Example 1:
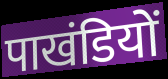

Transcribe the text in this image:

पाखंडियों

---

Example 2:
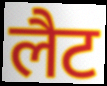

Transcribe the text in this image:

लैट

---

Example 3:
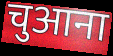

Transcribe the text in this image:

चुआना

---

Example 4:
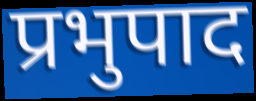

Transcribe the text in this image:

प्रभुपाद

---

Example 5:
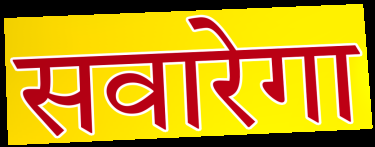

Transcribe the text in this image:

सवारेगा